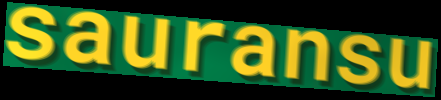
sauransu